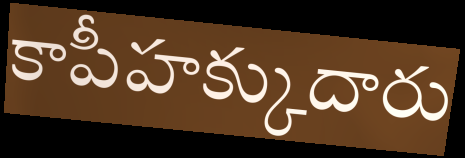
కాపీహక్కుదారు